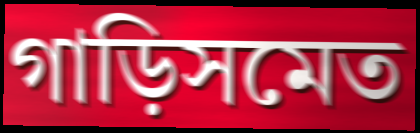
গাড়িসমেত